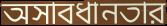
অসাবধানতার